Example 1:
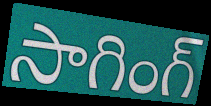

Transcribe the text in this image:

సాగింగ్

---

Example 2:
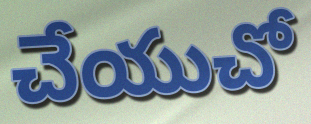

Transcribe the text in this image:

చేయుచో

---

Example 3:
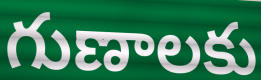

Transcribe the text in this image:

గుణాలకు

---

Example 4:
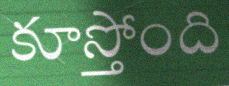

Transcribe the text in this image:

కూస్తోంది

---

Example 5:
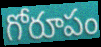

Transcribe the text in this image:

గోరూపం